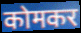
कोमकर